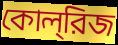
কোল্‌রিজ